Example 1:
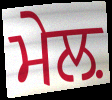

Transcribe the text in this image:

ਮੇਲ਼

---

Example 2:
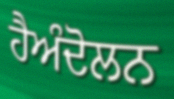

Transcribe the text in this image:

ਹੈਅੰਦੋਲਨ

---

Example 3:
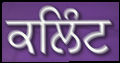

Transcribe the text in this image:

ਕਲਿੰਟ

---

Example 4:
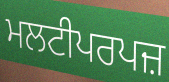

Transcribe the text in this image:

ਮਲਟੀਪਰਪਜ਼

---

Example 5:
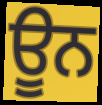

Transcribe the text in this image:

ਊਨ